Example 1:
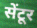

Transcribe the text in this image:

सेंटूर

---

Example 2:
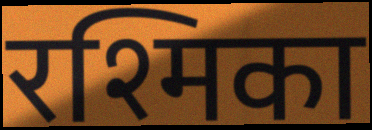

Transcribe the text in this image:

रश्मिका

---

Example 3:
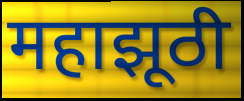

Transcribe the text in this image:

महाझूठी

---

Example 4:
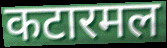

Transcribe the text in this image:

कटारमल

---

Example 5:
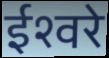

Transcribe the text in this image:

ईश्वरे